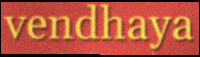
vendhaya